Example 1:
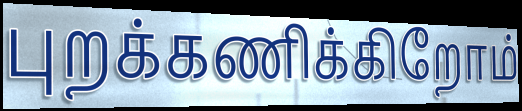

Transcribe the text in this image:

புறக்கணிக்கிறோம்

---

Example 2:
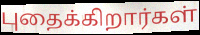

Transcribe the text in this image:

புதைக்கிறார்கள்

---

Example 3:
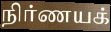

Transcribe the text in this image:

நிர்ணயக்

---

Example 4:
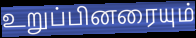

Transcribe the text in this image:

உறுப்பினரையும்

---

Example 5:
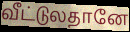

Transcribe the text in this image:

வீட்டுலதானே